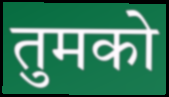
तुमको